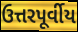
ઉત્તરપૂર્વીય